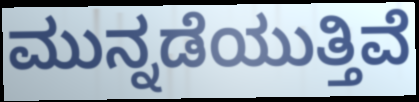
ಮುನ್ನಡೆಯುತ್ತಿವೆ